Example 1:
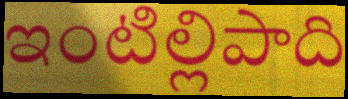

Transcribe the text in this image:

ఇంటిల్లిపాది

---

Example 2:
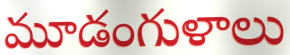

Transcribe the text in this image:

మూడంగుళాలు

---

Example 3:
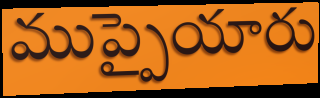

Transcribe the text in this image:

ముప్పైయారు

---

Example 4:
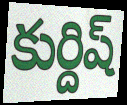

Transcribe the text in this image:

కుర్దిష్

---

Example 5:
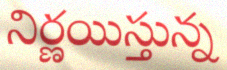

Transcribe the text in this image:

నిర్ణయిస్తున్న